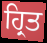
ਹ੍ਰਿਤ